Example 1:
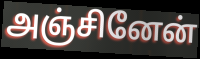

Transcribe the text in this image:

அஞ்சினேன்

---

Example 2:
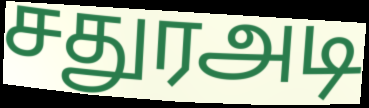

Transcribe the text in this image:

சதுரஅடி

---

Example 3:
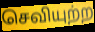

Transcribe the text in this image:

செவியுற்ற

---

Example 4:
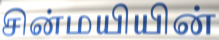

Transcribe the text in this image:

சின்மயியின்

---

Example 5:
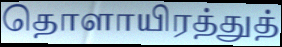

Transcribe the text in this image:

தொளாயிரத்துத்